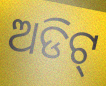
ଅଡିଟ୍